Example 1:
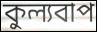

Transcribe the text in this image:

কুল্যবাপ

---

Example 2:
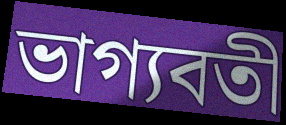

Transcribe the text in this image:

ভাগ্যবতী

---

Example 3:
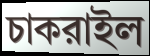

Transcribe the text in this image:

চাকরাইল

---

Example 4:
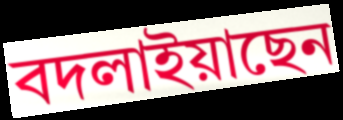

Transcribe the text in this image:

বদলাইয়াছেন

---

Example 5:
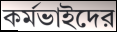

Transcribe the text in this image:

কর্মভাইদের